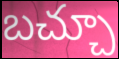
బచ్చూ